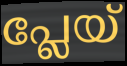
പ്ലേയ്